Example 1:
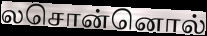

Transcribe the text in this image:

லசொன்னொல்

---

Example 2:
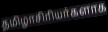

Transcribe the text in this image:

தமிழாசிரியர்களாக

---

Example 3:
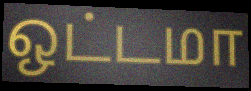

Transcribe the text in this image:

ஒட்டமா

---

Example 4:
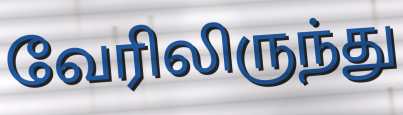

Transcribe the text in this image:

வேரிலிருந்து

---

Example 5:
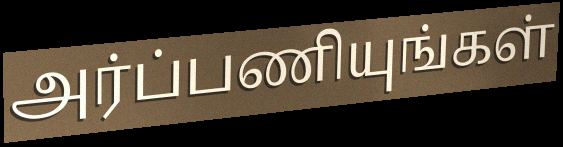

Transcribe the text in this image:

அர்ப்பணியுங்கள்